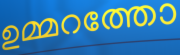
ഉമ്മറത്തോ